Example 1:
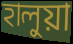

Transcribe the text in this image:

হালুয়া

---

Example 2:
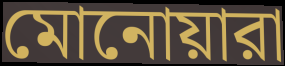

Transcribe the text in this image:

মোনোয়ারা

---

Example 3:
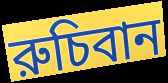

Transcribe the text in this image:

রুচিবান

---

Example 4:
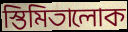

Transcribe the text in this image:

স্তিমিতালোক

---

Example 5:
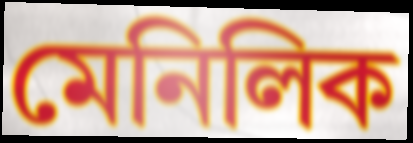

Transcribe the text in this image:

মেনিলিক